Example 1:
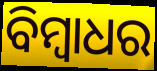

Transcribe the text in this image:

ବିମ୍ବାଧର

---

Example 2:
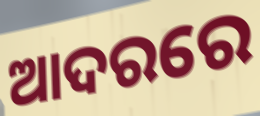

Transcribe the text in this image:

ଆଦରରେ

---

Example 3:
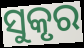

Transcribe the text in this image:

ସୁକୃର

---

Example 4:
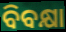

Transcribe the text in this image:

ବିବକ୍ଷା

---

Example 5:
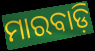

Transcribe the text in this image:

ମାରବାଡ଼ି